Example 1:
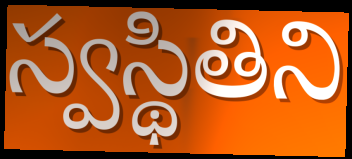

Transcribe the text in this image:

స్వస్థితిని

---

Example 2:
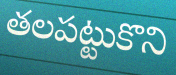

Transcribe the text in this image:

తలపట్టుకొని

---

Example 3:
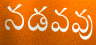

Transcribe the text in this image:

నడవవు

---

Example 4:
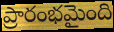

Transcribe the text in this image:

ప్రారంభమైంది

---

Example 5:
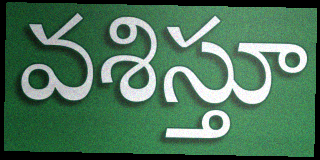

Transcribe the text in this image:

వశిస్తూ